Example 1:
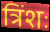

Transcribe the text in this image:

त्रिंशः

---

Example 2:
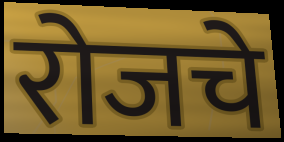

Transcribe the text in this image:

रोजचे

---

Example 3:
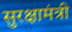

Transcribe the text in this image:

सुरक्षामंत्री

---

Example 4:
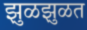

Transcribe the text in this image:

झुळझुळत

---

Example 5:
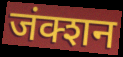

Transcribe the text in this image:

जंक्शन